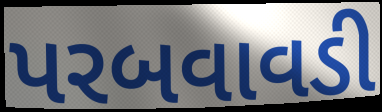
પરબવાવડી